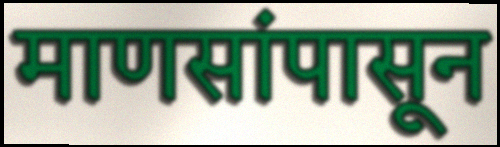
माणसांपासून